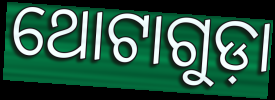
ଥୋଟାଗୁଡ଼ା